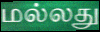
மல்லது